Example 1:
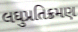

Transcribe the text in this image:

લઘુપ્રતિક્રમણ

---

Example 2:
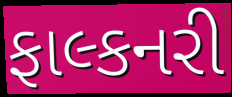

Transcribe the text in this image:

ફાલ્કનરી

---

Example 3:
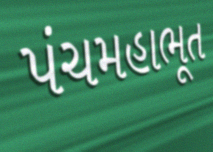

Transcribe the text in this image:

પંચમહાભૂત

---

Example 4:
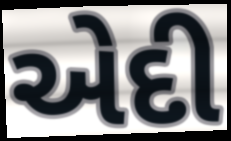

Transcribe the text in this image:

એદી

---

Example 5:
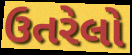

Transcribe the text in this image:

ઉતરેલો